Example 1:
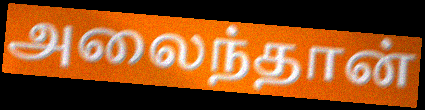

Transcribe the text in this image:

அலைந்தான்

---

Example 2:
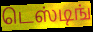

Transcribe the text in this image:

டெஸ்டிங்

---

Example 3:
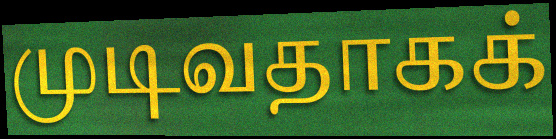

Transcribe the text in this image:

முடிவதாகக்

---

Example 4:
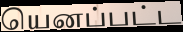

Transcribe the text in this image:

யெனப்பட்ட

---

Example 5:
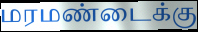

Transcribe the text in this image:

மரமண்டைக்கு